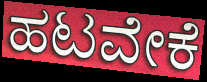
ಹಟವೇಕೆ